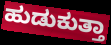
ಹುಡುಕುತ್ತಾ